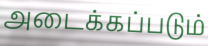
அடைக்கப்படும்